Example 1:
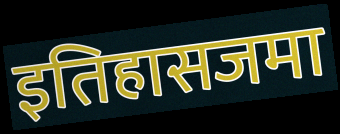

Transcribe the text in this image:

इतिहासजमा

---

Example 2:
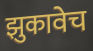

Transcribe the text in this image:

झुकावेच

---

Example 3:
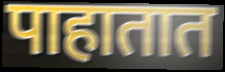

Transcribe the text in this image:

पाहातात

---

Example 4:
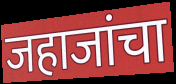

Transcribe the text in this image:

जहाजांचा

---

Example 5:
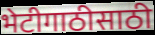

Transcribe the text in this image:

भेटीगाठीसाठी